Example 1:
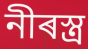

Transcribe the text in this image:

নীৰস্ত্ৰ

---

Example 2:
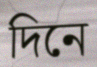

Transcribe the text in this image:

দিনে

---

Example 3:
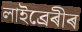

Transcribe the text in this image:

লাইব্ৰেৰীৰ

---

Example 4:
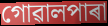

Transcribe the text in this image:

গোৱালপাৰা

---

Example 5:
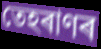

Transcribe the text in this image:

তেহৰাণৰ